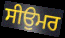
ਸੀਉਮਰ